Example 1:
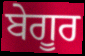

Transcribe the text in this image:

ਬੇਗੂਰ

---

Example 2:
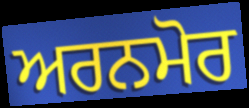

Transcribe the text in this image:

ਅਰਨਮੋਰ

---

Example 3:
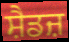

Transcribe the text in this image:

ਸ਼ੈਡਜ਼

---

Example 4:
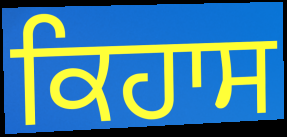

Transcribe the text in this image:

ਕਿਹਾਸ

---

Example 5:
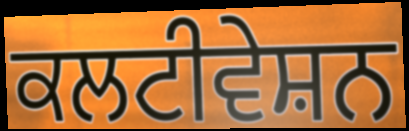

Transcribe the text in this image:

ਕਲਟੀਵੇਸ਼ਨ